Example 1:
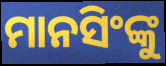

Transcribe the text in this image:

ମାନସିଂଙ୍କୁ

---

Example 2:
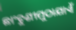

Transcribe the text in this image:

ଛାଂଚୁଣୀମୁଠାଯାଏଁ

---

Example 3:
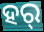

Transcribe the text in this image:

ହର୍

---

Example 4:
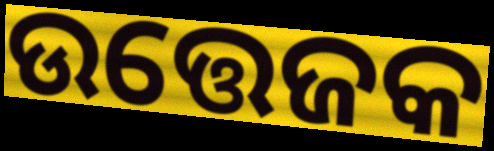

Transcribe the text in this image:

ଉତ୍ତେଜକ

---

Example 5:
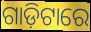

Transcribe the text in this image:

ଗାଡ଼ିଟାରେ